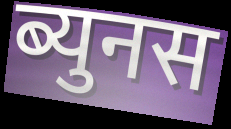
ब्युनस